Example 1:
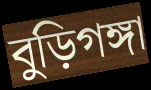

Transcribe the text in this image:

বুড়িগঙ্গা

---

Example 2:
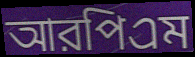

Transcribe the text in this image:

আরপিএম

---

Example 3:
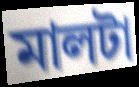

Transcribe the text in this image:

মালটা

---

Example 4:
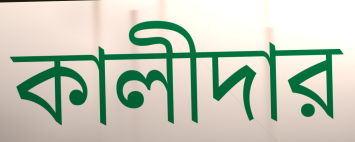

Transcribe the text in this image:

কালীদার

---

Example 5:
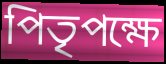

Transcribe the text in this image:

পিতৃপক্ষে